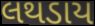
લથડાય